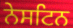
ਨੇਸਟਿਨ